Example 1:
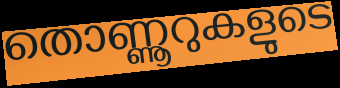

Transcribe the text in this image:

തൊണ്ണൂറുകളുടെ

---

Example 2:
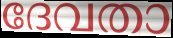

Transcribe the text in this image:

ദേവതാ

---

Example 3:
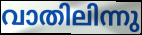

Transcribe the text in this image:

വാതിലിന്നു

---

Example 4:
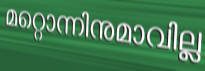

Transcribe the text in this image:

മറ്റൊന്നിനുമാവില്ല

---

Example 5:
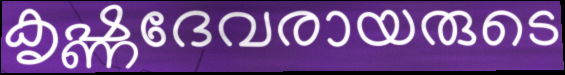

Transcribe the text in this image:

കൃഷ്ണദേവരായരുടെ